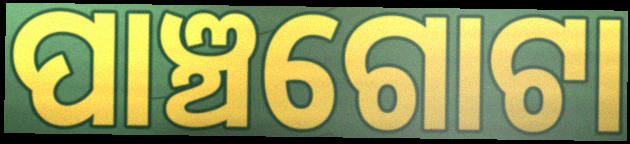
ପାଞ୍ଚଗୋଟା